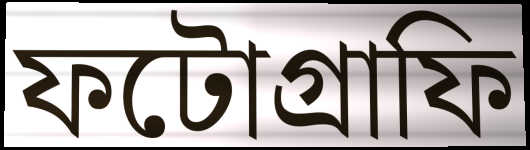
ফটোগ্রাফি